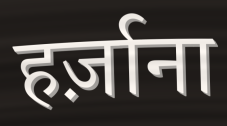
हर्ज़ाना